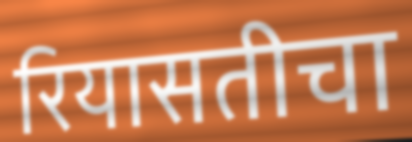
रियासतीचा